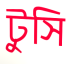
টুসি